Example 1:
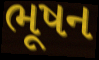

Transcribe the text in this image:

ભૂષન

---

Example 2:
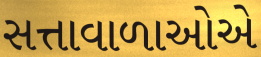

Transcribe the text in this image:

સત્તાવાળાઓએ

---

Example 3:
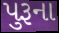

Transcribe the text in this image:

પુરૂના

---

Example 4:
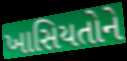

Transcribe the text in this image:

ખાસિયતોને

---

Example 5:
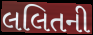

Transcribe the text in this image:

લલિતની